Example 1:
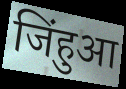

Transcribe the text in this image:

जिंहुआ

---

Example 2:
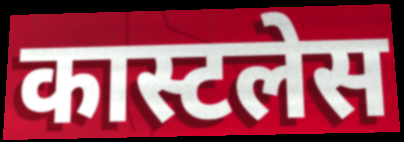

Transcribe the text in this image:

कास्टलेस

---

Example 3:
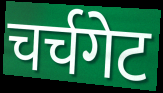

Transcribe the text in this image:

चर्चगेट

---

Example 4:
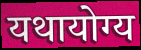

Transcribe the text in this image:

यथायोग्य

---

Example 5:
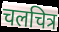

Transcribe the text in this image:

चलचित्र